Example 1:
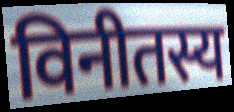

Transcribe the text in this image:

विनीतस्य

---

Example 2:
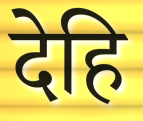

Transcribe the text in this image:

देहि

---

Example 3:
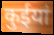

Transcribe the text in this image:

कुईयां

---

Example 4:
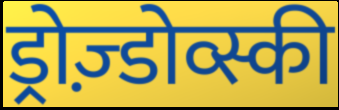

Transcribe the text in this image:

ड्रोज़्डोव्स्की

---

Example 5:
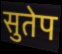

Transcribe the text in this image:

सुतेप